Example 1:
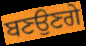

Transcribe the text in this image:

ਬਣਉਣਗੇ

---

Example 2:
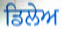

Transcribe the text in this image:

ਡਿਲੇਅ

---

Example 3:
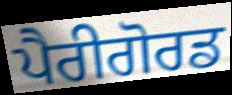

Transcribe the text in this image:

ਪੈਰੀਗੋਰਡ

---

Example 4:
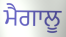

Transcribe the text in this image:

ਮੈਗਾਲੂ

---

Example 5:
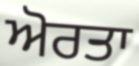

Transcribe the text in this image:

ਅੋਰਤਾ